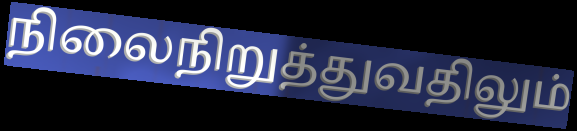
நிலைநிறுத்துவதிலும்